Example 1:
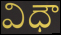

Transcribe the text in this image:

విధౌ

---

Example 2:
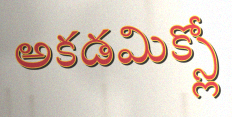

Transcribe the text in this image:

అకడమిక్స్లో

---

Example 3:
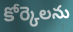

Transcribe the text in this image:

కోర్కెలను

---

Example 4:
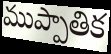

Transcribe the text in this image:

ముప్పాతిక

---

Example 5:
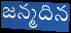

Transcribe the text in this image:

జన్మదిన